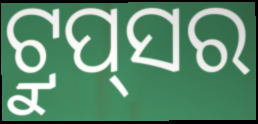
ଟ୍ରୁପ୍‌ସର